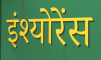
इंश्योरेंस